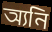
অ্যনি